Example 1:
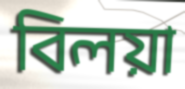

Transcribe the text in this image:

বিলয়া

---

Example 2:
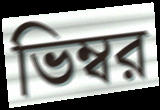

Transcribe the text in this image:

ভিম্বর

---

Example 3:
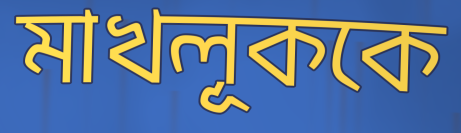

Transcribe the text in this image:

মাখলূককে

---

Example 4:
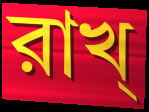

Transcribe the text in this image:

রাখ্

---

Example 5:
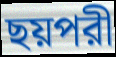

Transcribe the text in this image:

ছয়পরী